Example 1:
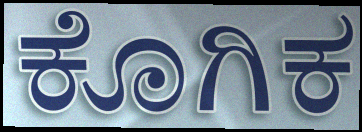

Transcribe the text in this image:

ಕೊಗಿಕ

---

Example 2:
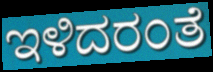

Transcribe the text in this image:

ಇಳಿದರಂತೆ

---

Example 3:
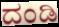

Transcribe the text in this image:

ದಂಡಿ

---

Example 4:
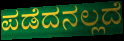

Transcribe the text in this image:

ಪಡೆದನಲ್ಲದೆ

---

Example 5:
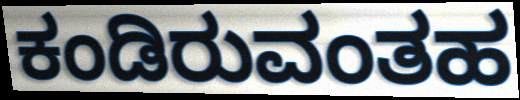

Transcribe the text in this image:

ಕಂಡಿರುವಂತಹ